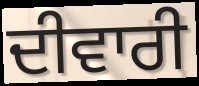
ਦੀਵਾਰੀ